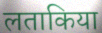
लताकिया